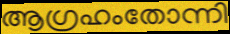
ആഗ്രഹംതോന്നി